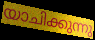
യാചിക്കുന്നു